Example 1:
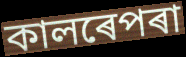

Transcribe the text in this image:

কালৰেপৰা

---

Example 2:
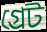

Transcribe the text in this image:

গ্ৰেট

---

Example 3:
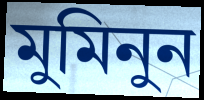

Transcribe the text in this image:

মুমিনুন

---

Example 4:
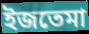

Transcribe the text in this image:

ইজতেমা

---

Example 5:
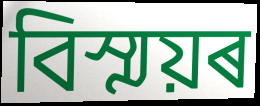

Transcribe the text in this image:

বিস্ময়ৰ